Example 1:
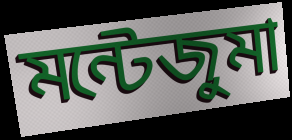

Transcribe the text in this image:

মন্টেজুমা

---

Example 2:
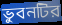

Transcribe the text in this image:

ভুবনটির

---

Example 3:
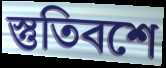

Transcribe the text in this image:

স্তুতিবশে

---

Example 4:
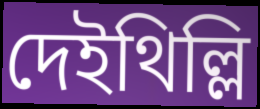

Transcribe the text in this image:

দেইথিল্লি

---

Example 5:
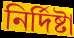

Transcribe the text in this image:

নির্দিষ্টা